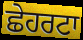
ਛੇਹਰਟਾ